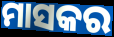
ମାସକର